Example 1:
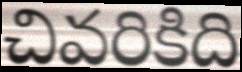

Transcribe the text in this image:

చివరికిది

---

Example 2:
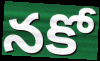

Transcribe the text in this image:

నకో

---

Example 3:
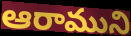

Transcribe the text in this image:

ఆరాముని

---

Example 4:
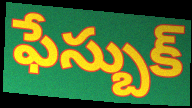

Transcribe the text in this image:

ఫేస్బుక్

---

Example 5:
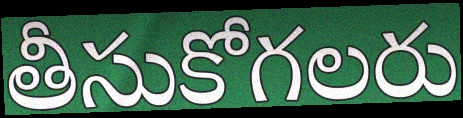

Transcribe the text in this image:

తీసుకోగలరు